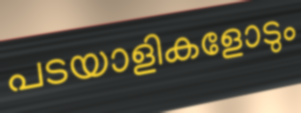
പടയാളികളോടും